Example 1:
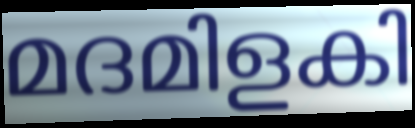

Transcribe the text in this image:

മദമിളകി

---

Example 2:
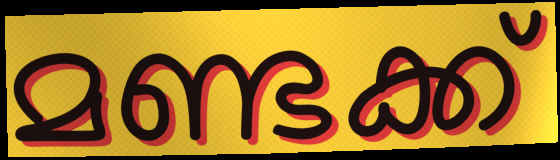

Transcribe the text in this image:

മണ്ടക്ക്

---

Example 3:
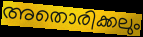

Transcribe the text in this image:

അതൊരിക്കലും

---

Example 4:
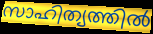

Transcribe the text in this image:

സാഹിത്യത്തിൽ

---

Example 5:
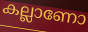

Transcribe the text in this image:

കല്ലാണോ